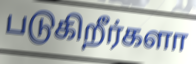
படுகிறீர்களா